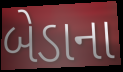
બેડાના